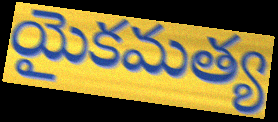
యైకమత్య